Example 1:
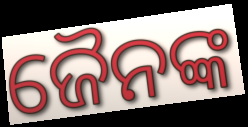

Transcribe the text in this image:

ଜୈନଙ୍କ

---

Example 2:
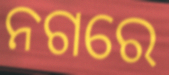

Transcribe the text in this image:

ନଗରେ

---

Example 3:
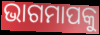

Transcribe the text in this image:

ଭାଗମାପକୁ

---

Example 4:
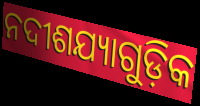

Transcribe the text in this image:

ନଦୀଶଯ୍ୟାଗୁଡ଼ିକ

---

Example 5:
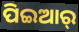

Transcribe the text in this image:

ପିଇଆର୍